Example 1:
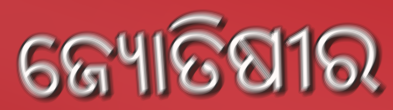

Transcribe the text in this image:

ଜ୍ୟୋତିଷୀର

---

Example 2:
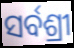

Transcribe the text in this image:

ସର୍ବଶ୍ରୀ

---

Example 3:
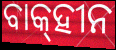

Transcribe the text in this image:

ବାକ୍‌ହୀନ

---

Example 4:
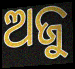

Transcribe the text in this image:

ଅଜୁ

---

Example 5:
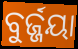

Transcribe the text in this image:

ବୁର୍ଜ୍ଜୟା